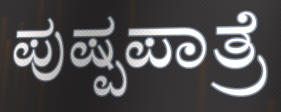
ಪುಷ್ಪಪಾತ್ರೆ